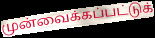
முன்வைக்கப்பட்டுக்